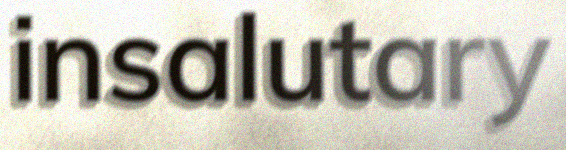
insalutary